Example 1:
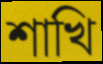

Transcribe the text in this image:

শাখি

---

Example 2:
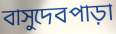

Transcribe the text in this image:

বাসুদেবপাড়া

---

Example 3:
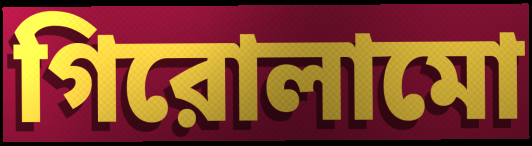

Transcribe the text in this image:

গিরোলামো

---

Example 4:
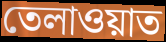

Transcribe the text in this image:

তেলাওয়াত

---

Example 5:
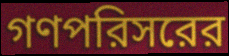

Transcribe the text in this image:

গণপরিসরের